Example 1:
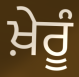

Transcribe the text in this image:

ਖ਼ੇਰੂੰ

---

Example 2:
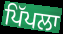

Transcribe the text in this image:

ਪਿੱਪਲਾ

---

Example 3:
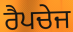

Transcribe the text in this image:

ਰੈਪਚੇਜ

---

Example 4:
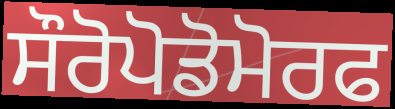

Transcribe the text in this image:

ਸੌਰੋਪੋਡੋਮੋਰਫ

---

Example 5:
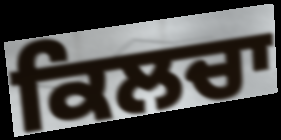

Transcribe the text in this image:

ਕਿਲਚਾ